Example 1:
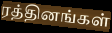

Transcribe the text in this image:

ரத்தினங்கள்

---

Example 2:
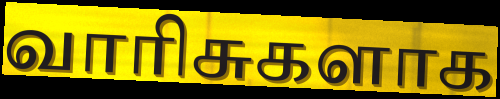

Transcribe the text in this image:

வாரிசுகளாக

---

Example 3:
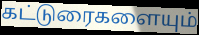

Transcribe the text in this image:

கட்டுரைகளையும்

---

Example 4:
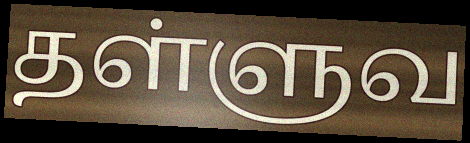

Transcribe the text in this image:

தள்ளுவ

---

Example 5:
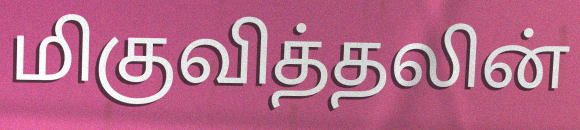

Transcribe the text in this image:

மிகுவித்தலின்